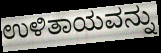
ಉಳಿತಾಯವನ್ನು